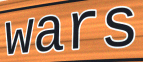
wars